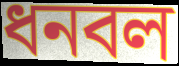
ধনবল